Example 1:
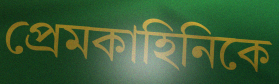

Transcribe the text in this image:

প্রেমকাহিনিকে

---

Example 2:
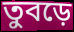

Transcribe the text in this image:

তুবড়ে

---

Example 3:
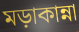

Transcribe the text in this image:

মড়াকান্না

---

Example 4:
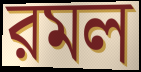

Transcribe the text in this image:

রমল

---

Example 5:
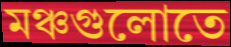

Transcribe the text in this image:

মঞ্চগুলোতে